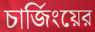
চার্জিংয়ের